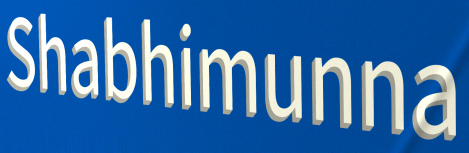
Shabhimunna